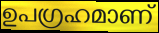
ഉപഗ്രഹമാണ്